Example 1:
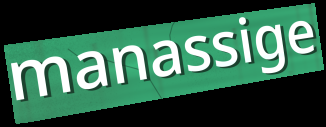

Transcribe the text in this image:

manassige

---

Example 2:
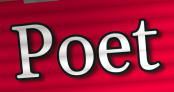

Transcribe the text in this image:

Poet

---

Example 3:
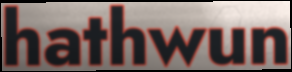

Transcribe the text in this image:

hathwun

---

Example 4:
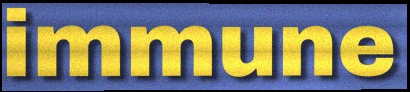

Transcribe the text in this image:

immune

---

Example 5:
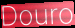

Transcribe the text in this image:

Douro